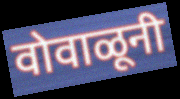
वोवाळूनी